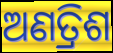
ଅଣତ୍ରିଶ